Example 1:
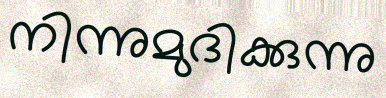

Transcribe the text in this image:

നിന്നുമുദിക്കുന്നു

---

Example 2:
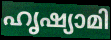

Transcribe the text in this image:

ഹൃഷ്യാമി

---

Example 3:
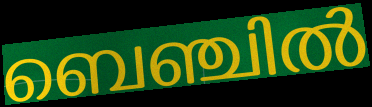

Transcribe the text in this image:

ബെഞ്ചിൽ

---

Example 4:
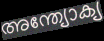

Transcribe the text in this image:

അന്ത്യോക്യ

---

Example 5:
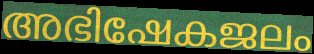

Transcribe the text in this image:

അഭിഷേകജലം